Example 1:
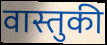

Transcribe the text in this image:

वास्तुकी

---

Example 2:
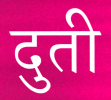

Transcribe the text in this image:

दुती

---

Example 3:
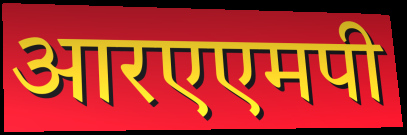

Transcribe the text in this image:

आरएएमपी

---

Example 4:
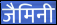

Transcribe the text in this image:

जैमिनी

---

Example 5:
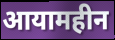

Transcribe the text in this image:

आयामहीन